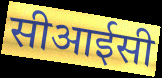
सीआईसी